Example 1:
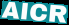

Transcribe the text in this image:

AICR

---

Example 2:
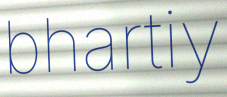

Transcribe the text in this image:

bhartiy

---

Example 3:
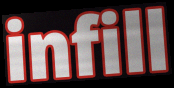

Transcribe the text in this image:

infill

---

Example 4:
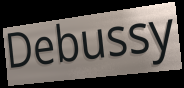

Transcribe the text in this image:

Debussy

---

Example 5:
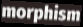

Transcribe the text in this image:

morphism